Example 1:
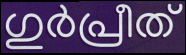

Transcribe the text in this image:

ഗുർപ്രീത്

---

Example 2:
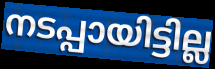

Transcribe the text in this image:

നടപ്പായിട്ടില്ല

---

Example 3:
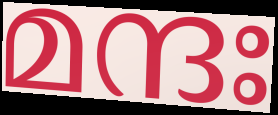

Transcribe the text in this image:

മന്ദഃ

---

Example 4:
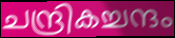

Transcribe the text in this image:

ചന്ദ്രികച്ചന്ദം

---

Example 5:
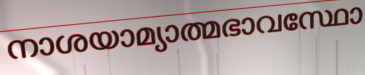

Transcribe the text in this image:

നാശയാമ്യാത്മഭാവസ്ഥോ